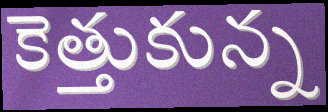
కెత్తుకున్న